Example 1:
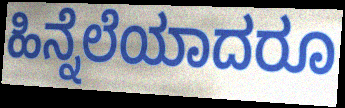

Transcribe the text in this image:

ಹಿನ್ನೆಲೆಯಾದರೂ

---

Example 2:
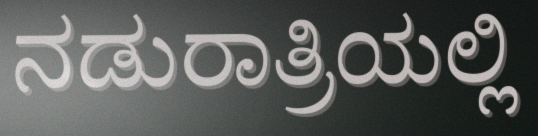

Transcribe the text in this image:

ನಡುರಾತ್ರಿಯಲ್ಲಿ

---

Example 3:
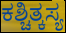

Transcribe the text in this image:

ಕಶ್ಚಿತ್ಕಸ್ಯ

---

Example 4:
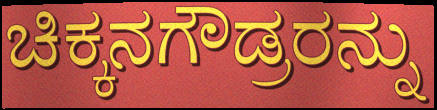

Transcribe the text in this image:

ಚಿಕ್ಕನಗೌಡ್ರರನ್ನು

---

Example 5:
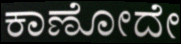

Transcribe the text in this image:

ಕಾಣೋದೇ